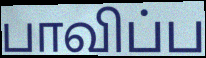
பாவிப்ப